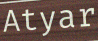
Atyar